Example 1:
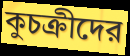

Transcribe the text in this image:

কুচক্রীদের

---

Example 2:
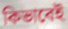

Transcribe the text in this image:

কিভাবেই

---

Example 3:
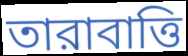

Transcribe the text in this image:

তারাবাত্তি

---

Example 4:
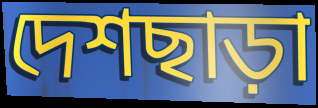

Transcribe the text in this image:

দেশছাড়া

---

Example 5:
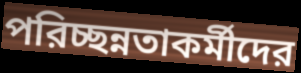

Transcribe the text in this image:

পরিচ্ছন্নতাকর্মীদের